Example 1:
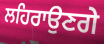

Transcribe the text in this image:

ਲਹਿਰਾਉਣਗੇ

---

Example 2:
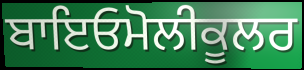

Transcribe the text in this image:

ਬਾਇਓਮੋਲੀਕੂਲਰ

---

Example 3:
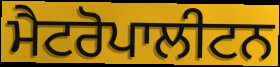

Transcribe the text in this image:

ਮੈਟਰੋਪਾਲੀਟਨ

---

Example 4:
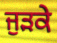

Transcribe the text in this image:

ਜੁੜਕੇ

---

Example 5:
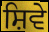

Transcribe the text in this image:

ਸ਼ਿਵੇ